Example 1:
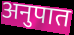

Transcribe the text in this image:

अनुपात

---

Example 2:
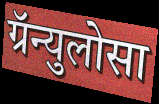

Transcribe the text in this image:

ग्रॅन्युलोसा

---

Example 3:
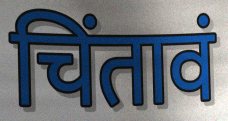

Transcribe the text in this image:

चिंतावं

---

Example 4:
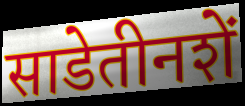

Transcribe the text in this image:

साडेतीनशें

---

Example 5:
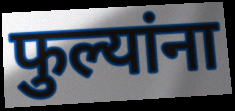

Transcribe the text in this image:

फुल्यांना